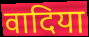
वादिया